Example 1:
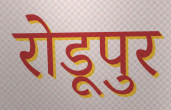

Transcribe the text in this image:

रोडूपुर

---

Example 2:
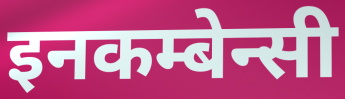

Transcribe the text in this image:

इनकम्बेन्सी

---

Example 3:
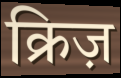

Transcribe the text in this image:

क्रिज़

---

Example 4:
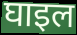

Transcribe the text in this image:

घाइल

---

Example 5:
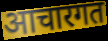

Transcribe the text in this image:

आचारगत